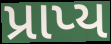
પ્રાપ્ય